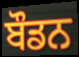
ਬੌਡਨ